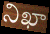
నిఖా